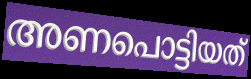
അണപൊട്ടിയത്